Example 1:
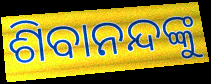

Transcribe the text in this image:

ଶିବାନନ୍ଦଙ୍କୁ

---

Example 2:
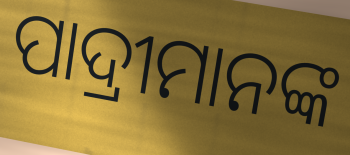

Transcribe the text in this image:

ପାଦ୍ରୀମାନଙ୍କ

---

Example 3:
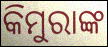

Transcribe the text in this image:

କିମୁରାଙ୍କ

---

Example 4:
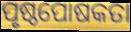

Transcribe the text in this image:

ପୃଷ୍ଠପୋଷକତା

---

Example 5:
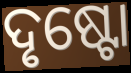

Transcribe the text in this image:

ଦୃଷ୍ଟୋ